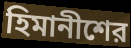
হিমানীশের